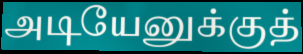
அடியேனுக்குத்